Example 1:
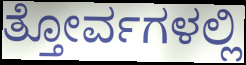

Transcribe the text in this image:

ತ್ತೋರ್ವಗಳಲ್ಲಿ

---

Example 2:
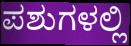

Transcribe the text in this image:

ಪಶುಗಳಲ್ಲಿ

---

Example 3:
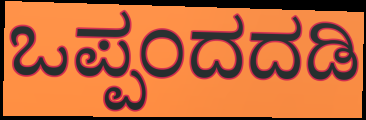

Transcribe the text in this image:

ಒಪ್ಪಂದದಡಿ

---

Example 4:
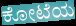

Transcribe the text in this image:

ಕೋಟೆಯ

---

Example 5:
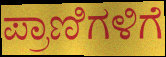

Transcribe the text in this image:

ಪ್ರಾಣಿಗಳಿಗೆ